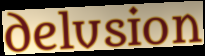
delusion